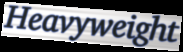
Heavyweight